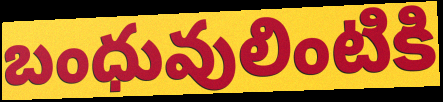
బంధువులింటికి